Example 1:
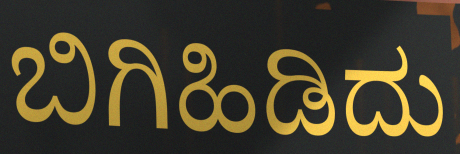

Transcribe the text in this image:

ಬಿಗಿಹಿಡಿದು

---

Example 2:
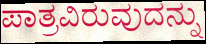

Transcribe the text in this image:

ಪಾತ್ರವಿರುವುದನ್ನು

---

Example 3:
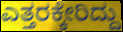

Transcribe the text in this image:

ಎತ್ತರಕ್ಕೇರಿದ್ದು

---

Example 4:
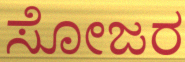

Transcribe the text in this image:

ಸೋಜರ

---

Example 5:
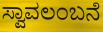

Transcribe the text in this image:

ಸ್ವಾವಲಂಬನೆ